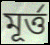
মূর্ত্ত